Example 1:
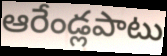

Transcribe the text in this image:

ఆరేండ్లపాటు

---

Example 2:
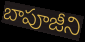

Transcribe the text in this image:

బాపూజీని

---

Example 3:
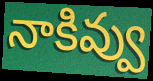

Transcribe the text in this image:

నాకివ్వు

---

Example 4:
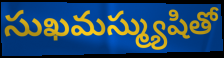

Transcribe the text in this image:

సుఖమస్మ్యుషితో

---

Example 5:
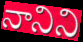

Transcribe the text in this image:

నానిని